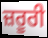
ਜ਼ਰੂਰੀ